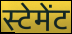
स्टेमेंट